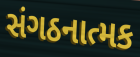
સંગઠનાત્મક